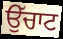
ਉੱਚਾਟ